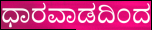
ಧಾರವಾಡದಿಂದ